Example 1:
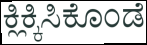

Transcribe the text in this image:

ಕ್ಲಿಕ್ಕಿಸಿಕೊಂಡೆ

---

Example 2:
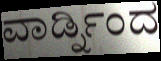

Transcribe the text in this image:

ವಾರ್ಡ್ನಿಂದ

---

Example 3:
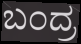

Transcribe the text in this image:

ಬಂದ್ರ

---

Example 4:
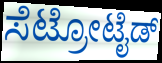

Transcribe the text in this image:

ಸೆಟ್ರೋಟೈಡ್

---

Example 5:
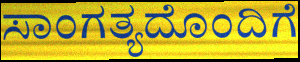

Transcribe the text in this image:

ಸಾಂಗತ್ಯದೊಂದಿಗೆ